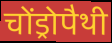
चोंड्रोपैथी